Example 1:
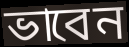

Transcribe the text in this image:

ভাবেন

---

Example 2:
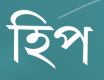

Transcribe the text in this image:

হিপ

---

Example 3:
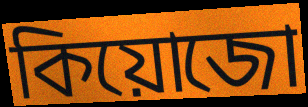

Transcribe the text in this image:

কিয়োজো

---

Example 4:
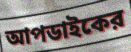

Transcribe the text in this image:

আপডাইকের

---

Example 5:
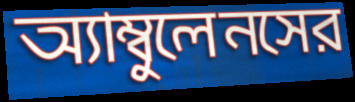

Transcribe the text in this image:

অ্যাম্বুলেনসের